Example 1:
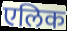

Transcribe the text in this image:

एलिक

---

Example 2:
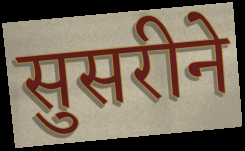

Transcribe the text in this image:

सुसरीने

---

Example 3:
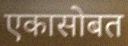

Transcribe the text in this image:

एकासोबत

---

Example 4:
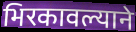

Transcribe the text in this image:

भिरकावल्याने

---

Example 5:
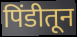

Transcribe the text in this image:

पिंडीतून